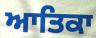
ਆਤਿਕਾ